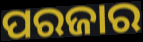
ପରଜାର